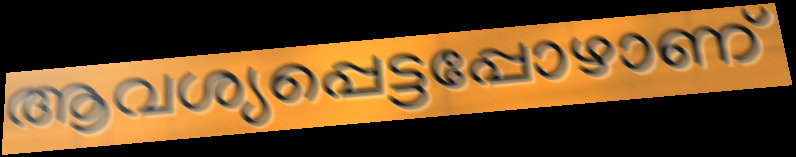
ആവശ്യപ്പെട്ടപ്പോഴാണ്